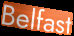
Belfast